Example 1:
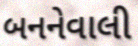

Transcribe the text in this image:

બનનેવાલી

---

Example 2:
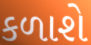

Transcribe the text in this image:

કળાશે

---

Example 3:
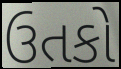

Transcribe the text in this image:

ઉતકો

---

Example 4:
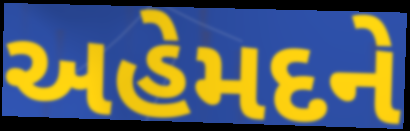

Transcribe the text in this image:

અહેમદને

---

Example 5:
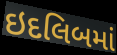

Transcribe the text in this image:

ઇદલિબમાં